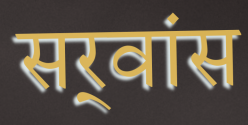
सर्वांस